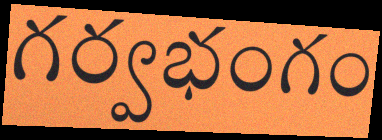
గర్వభంగం